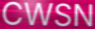
CWSN